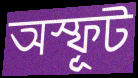
অস্ফূট